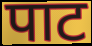
पाट